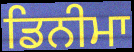
ਡਿਨੀਮਾ